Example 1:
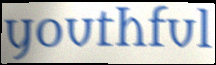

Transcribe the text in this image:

youthful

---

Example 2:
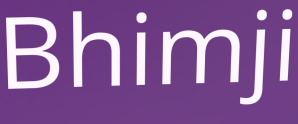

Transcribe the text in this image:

Bhimji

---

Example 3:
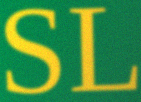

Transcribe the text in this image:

SL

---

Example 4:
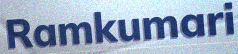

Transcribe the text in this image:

Ramkumari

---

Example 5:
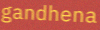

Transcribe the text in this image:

gandhena